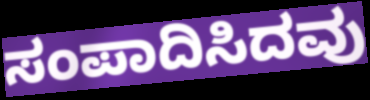
ಸಂಪಾದಿಸಿದವು